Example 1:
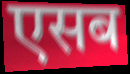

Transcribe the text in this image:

एसब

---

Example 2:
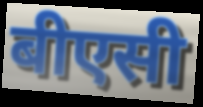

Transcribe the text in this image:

बीएसी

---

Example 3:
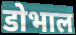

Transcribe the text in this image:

डोभाल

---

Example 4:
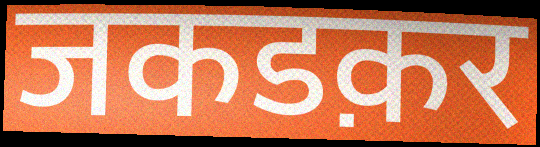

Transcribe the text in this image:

जकडक़र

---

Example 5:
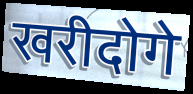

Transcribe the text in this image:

खरीदोगे